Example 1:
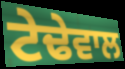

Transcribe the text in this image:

ਟੇਢੇਵਾਲ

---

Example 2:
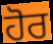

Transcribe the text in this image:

ਹੋਰ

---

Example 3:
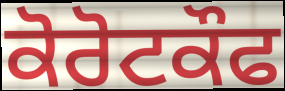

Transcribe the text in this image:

ਕੋਰੋਟਕੌਫ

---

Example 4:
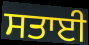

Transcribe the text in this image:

ਸਤਾਈ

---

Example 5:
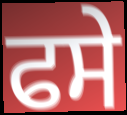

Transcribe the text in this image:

ਫਸੇ